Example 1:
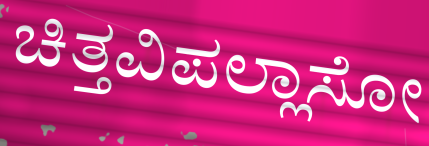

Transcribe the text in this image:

ಚಿತ್ತವಿಪಲ್ಲಾಸೋ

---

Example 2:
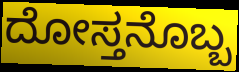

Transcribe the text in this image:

ದೋಸ್ತನೊಬ್ಬ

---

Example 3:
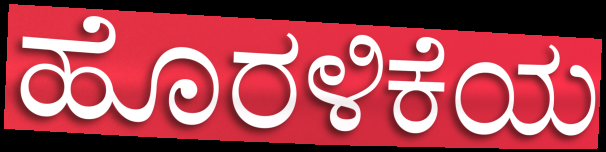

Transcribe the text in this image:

ಹೊರಳಿಕೆಯ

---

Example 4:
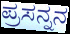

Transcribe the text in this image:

ಪ್ರಸನ್ನನ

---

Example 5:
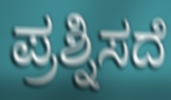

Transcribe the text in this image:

ಪ್ರಶ್ನಿಸದೆ